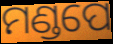
ମଣ୍ଡପେ